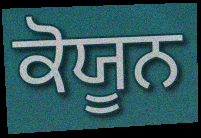
ਕੋਯੂਨ